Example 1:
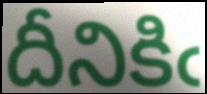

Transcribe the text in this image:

దీనికిఁ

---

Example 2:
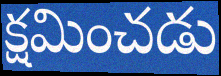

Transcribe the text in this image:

క్షమించడు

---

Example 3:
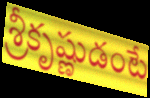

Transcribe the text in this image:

శ్రీకృష్ణుడంటే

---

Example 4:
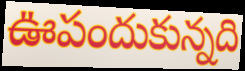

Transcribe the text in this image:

ఊపందుకున్నది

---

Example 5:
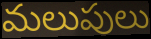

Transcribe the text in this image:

మలుపులు